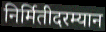
निर्मितीदरम्यान